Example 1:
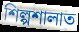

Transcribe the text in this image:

শিল্পশালাত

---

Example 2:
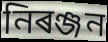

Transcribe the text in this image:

নিৰঞ্জন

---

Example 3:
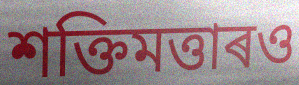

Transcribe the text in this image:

শক্তিমত্তাৰও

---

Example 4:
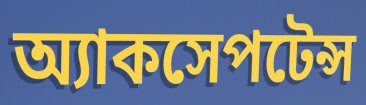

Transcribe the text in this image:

অ্যাকসেপটেন্স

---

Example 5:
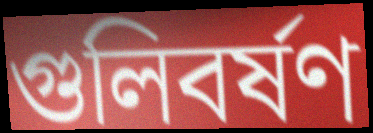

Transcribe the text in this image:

গুলিবৰ্ষণ